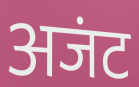
अजंट